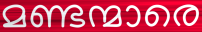
മണ്ടന്മാരെ